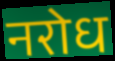
नरोध